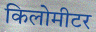
किलोमीटर